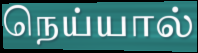
நெய்யால்